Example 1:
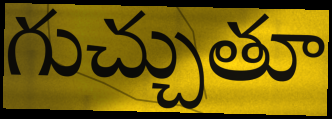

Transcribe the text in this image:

గుచ్చుతూ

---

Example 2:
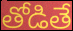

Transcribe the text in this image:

తోడితే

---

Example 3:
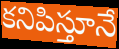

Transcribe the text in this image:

కనిపిస్తూనే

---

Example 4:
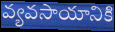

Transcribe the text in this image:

వ్యవసాయానికి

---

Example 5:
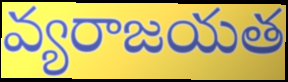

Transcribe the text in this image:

వ్యరాజయత